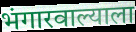
भंगारवाल्याला